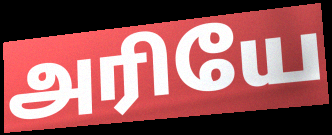
அரியே